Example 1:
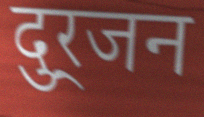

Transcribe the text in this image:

दुर्जन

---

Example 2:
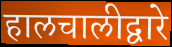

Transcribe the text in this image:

हालचालीद्वारे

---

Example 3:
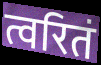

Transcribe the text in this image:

त्वरितं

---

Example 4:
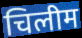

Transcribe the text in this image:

चिलीम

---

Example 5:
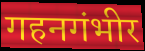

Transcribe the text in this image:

गहनगंभीर